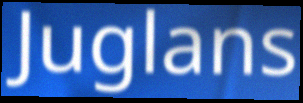
Juglans